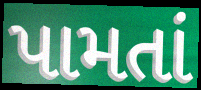
પામતાં